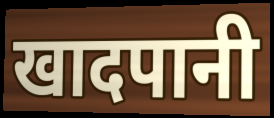
खादपानी